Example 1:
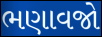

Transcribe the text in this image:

ભણાવજો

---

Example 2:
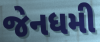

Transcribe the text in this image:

જેનધમી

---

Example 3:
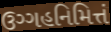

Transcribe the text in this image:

ઉગ્ગહનિમિત્તં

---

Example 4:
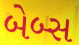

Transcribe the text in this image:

બેબ્સ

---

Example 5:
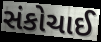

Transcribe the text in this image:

સંકોચાઈ